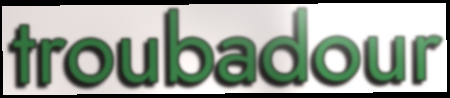
troubadour